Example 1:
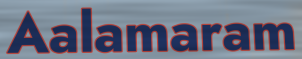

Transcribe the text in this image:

Aalamaram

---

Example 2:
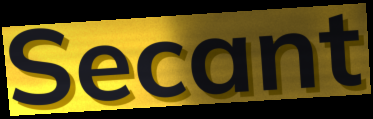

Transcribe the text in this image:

Secant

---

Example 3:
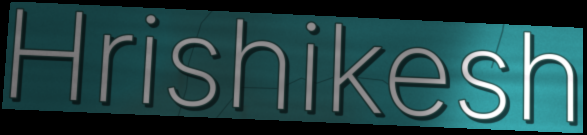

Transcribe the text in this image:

Hrishikesh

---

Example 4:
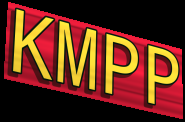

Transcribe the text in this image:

KMPP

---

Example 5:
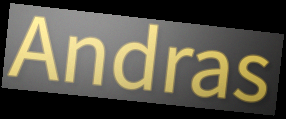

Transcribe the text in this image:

Andras